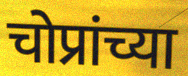
चोप्रांच्या